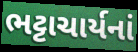
ભટ્ટાચાર્યનાં